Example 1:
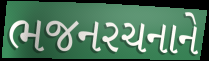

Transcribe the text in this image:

ભજનરચનાને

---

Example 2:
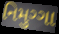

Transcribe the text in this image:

નિમુગ્ગા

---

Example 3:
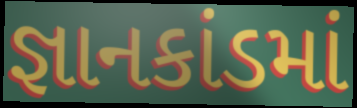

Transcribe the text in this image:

જ્ઞાનકાંડમાં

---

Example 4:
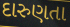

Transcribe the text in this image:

દારુણતા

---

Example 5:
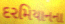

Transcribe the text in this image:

દરમિયાનના